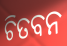
ଚିତବନ